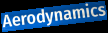
Aerodynamics